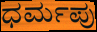
ಧರ್ಮಪು